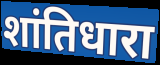
शांतिधारा